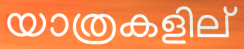
യാത്രകളില്